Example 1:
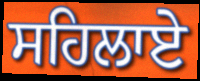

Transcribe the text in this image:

ਸਹਿਲਾਏ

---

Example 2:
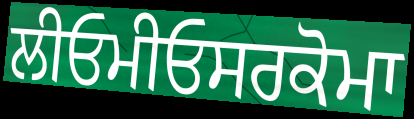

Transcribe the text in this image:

ਲੀਓਮੀਓਸਰਕੋਮਾ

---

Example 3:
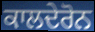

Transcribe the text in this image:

ਕਾਲਦੇਰੋਨ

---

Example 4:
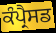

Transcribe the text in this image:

ਕੰਪ੍ਰੈਸਡ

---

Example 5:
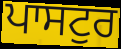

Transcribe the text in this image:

ਪਾਸਟੁਰ